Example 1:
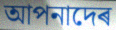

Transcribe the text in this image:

আপনাদেৰ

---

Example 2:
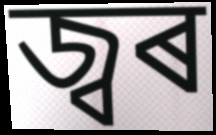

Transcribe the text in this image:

জ্বৰ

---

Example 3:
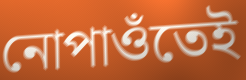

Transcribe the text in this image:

নোপাওঁতেই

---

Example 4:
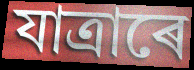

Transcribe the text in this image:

যাত্ৰাৰে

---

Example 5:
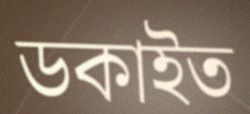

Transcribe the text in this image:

ডকাইত